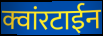
क्वांरटाईन